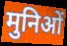
मुनिओं